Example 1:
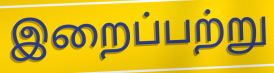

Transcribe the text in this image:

இறைப்பற்று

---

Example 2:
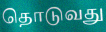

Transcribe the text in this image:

தொடுவது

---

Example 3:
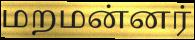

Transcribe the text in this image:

மறமன்னர்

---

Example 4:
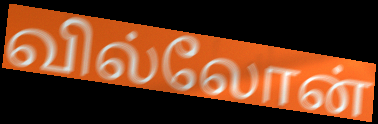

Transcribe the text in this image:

வில்லோன்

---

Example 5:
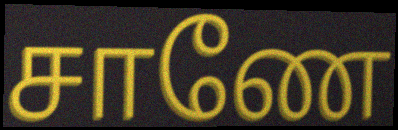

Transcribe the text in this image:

சாணே